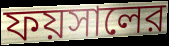
ফয়সালের